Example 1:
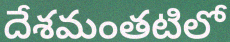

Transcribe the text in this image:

దేశమంతటిలో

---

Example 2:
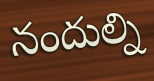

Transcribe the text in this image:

నందుల్ని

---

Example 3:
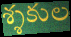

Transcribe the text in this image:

శ్శకుల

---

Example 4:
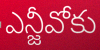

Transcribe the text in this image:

ఎన్జీవోకు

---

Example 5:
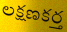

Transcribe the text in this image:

లక్షణకర్త